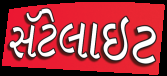
સૅટેલાઇટ